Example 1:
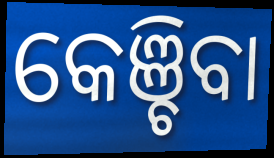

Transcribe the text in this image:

କେଞ୍ଚିବା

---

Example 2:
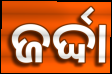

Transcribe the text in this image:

ଜର୍ଦ୍ଦା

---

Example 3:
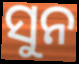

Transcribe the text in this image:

ସୁନ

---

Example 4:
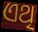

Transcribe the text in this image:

ଏଥି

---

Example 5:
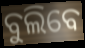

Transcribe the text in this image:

ବୁଲିବେ